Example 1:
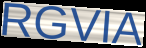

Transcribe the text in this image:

RGVIA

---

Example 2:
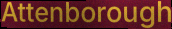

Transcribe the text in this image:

Attenborough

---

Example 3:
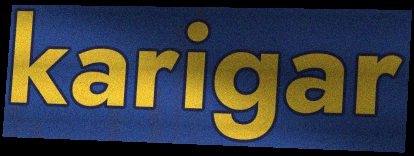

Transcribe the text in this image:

karigar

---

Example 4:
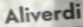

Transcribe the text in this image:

Aliverdi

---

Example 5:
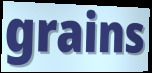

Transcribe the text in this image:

grains